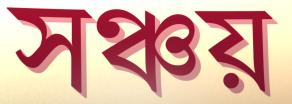
সঞ্চয়